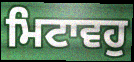
ਮਿਟਾਵਹੁ